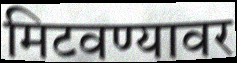
मिटवण्यावर